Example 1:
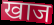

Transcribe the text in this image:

खाज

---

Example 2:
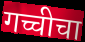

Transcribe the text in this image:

गच्चीचा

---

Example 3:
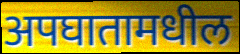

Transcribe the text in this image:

अपघातामधील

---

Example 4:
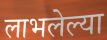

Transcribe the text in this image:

लाभलेल्या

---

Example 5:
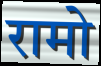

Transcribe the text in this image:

रामो